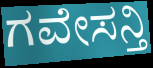
ಗವೇಸನ್ತಿ